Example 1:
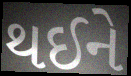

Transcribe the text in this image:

થઈને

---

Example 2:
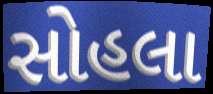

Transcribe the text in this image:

સોહલા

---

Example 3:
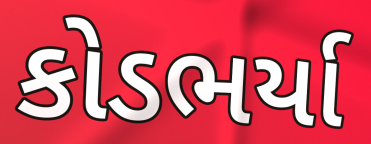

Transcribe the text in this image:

કોડભર્યા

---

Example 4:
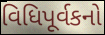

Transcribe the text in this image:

વિધિપૂર્વકનો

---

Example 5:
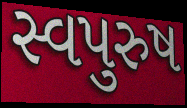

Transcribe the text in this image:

સ્વપુરુષ